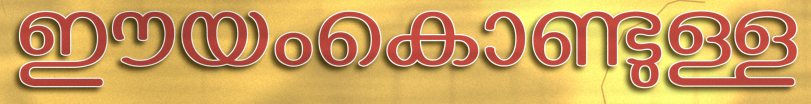
ഈയംകൊണ്ടുള്ള